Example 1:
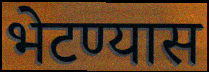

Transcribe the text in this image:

भेटण्यास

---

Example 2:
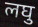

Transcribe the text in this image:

लघु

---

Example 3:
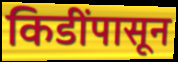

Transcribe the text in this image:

किडींपासून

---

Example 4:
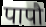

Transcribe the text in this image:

पापौ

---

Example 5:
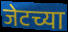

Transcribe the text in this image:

जेटच्या